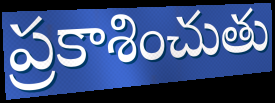
ప్రకాశించుతు